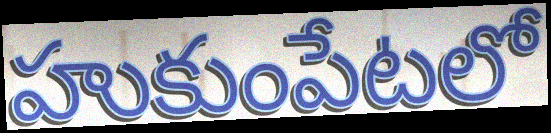
హుకుంపేటలో